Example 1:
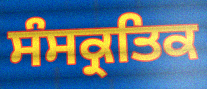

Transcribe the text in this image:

ਸੰਸਕ੍ਰਤਿਕ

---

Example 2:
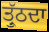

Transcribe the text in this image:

ਤ੍ਰੁੱਠਦਾ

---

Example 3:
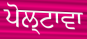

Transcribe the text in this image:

ਪੋਲ੍ਟਾਵਾ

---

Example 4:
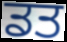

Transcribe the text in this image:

ਡਤ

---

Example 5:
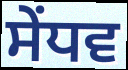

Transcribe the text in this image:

ਸੇਂਧਵ